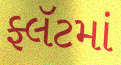
ફ્લૅટમાં